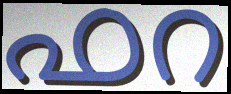
ഫറ